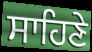
ਸਾਹਿਣੇ